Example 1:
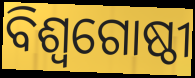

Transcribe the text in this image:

ବିଶ୍ୱଗୋଷ୍ଠୀ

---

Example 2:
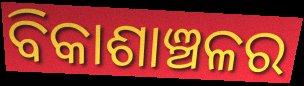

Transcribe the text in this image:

ବିକାଶାଞ୍ଚଳର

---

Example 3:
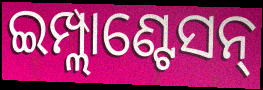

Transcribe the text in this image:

ଇମ୍ପ୍ଲାଣ୍ଟେସନ୍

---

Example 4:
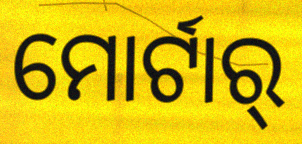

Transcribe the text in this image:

ମୋର୍ଟାର୍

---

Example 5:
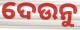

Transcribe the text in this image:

ଦେଉନୁ